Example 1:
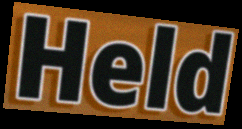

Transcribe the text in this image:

Held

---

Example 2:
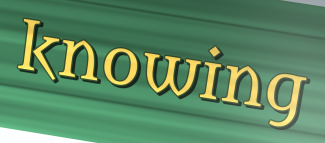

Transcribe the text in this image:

knowing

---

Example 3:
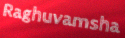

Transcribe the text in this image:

Raghuvamsha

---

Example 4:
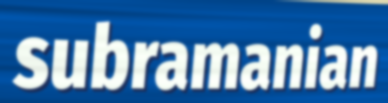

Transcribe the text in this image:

subramanian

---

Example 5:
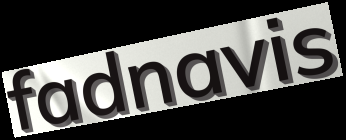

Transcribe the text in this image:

fadnavis